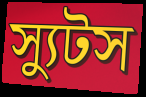
স্যুটস